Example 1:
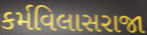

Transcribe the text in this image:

કર્મવિલાસરાજા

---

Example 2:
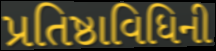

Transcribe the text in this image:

પ્રતિષ્ઠાવિધિની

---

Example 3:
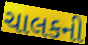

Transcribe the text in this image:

ચાલકની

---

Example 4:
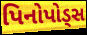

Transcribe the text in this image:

પિનોપોડ્સ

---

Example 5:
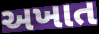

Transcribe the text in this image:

અખાત